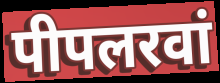
पीपलरवां